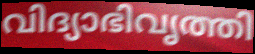
വിദ്യാഭിവൃത്തി